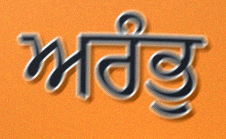
ਅਰੰਭੁ